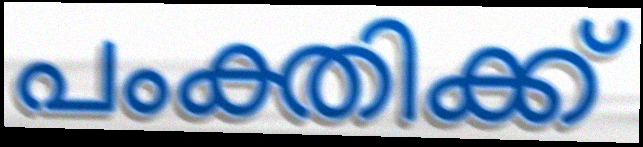
പംക്തിക്ക്